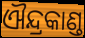
ଐନ୍ଦ୍ରକାଣ୍ଡ